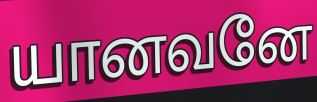
யானவனே